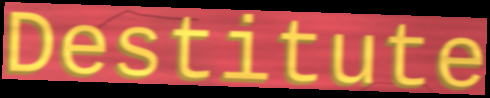
Destitute